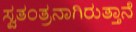
ಸ್ವತಂತ್ರನಾಗಿರುತ್ತಾನೆ